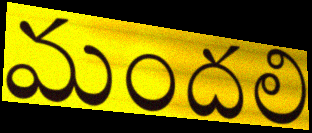
మందలి